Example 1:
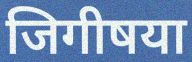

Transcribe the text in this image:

जिगीषया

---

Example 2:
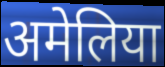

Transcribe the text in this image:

अमेलिया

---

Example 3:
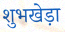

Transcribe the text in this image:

शुभखेड़ा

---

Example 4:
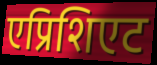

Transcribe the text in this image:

एप्रिशिएट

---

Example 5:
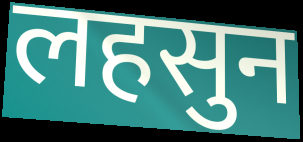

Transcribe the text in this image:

लहसुन